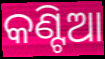
କଣ୍ଟିଆ